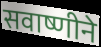
सवाष्णीने